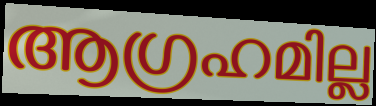
ആഗ്രഹമില്ല